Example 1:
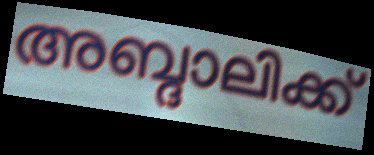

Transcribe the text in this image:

അബ്ദാലിക്ക്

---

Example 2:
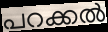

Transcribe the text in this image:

പറക്കൽ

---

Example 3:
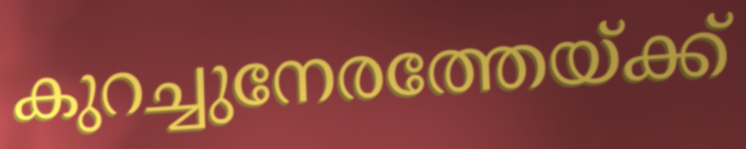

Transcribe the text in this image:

കുറച്ചുനേരത്തേയ്ക്ക്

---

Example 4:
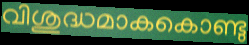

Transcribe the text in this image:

വിശുദ്ധമാകകൊണ്ടു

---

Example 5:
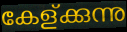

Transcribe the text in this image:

കേള്ക്കുന്നു